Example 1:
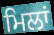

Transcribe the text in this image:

ਮਿਲਾਂ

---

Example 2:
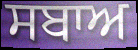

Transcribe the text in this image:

ਸਬਾਅ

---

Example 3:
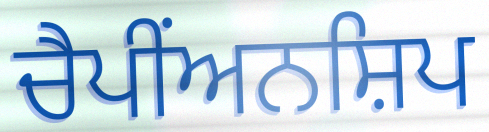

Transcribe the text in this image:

ਚੈਪੀਂਅਨਸ਼ਿਪ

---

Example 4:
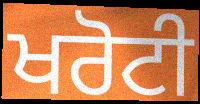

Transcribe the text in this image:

ਖਰੋਟੀ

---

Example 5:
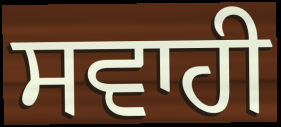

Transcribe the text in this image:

ਸਵਾਹੀ